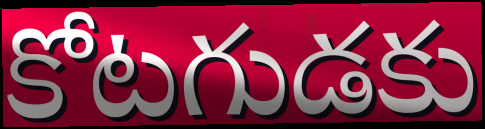
కోటగుడకు